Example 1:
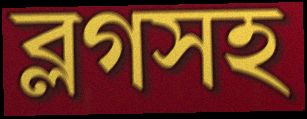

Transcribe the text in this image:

ব্লগসহ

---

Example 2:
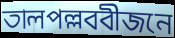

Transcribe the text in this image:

তালপল্লববীজনে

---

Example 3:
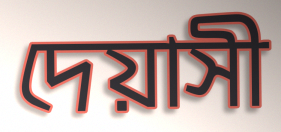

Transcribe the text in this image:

দেয়াসী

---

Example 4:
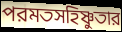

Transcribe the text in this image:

পরমতসহিষ্ণুতার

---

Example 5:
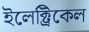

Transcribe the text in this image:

ইলেক্ট্রিকেল